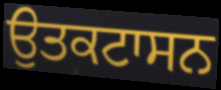
ਉਤਕਟਾਸਨ